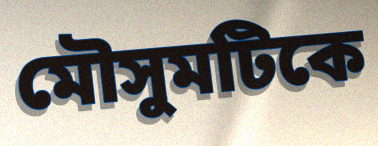
মৌসুমটিকে